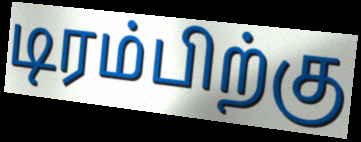
டிரம்பிற்கு